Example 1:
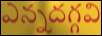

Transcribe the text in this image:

ఎన్నదగ్గవి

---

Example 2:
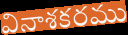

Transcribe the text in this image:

వినాశకరము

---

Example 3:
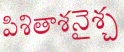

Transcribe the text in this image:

పిశితాశనైశ్చ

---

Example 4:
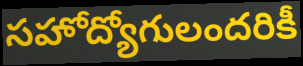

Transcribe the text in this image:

సహోద్యోగులందరికీ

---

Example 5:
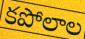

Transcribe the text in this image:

కపోలాల